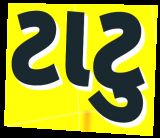
ટાટુ